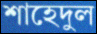
শাহেদুল